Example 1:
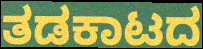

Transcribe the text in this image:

ತಡಕಾಟದ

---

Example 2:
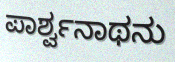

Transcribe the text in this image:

ಪಾರ್ಶ್ವನಾಥನು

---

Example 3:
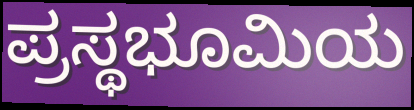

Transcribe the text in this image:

ಪ್ರಸ್ಥಭೂಮಿಯ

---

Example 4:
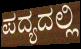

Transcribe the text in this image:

ಪದ್ಯದಲ್ಲಿ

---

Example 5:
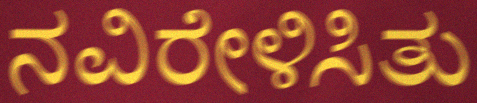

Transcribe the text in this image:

ನವಿರೇಳಿಸಿತು